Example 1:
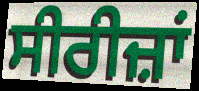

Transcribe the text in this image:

ਸੀਰੀਜ਼ਾਂ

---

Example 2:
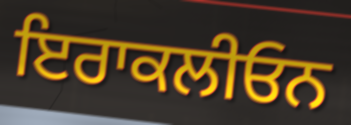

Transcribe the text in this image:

ਇਰਾਕਲੀਓਨ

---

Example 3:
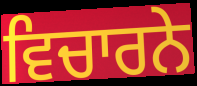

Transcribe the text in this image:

ਵਿਚਾਰਨੇ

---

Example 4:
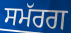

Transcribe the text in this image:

ਸਮੱਰਗ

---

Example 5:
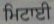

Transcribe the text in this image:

ਮਿਟਾਈ